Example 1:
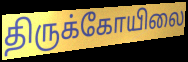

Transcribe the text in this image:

திருக்கோயிலை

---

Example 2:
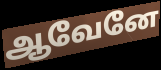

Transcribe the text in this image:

ஆவேனே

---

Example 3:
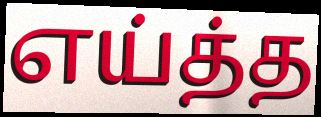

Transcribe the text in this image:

எய்த்த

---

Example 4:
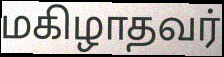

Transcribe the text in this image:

மகிழாதவர்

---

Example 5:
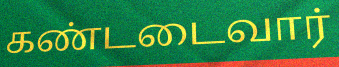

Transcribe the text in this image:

கண்டடைவார்